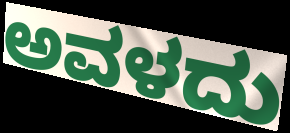
ಅವಳದು